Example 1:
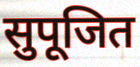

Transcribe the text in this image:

सुपूजित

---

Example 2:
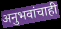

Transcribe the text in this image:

अनुभवांचाही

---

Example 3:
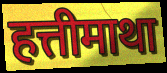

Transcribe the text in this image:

हत्तीमाथा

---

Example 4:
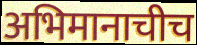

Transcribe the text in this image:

अभिमानाचीच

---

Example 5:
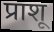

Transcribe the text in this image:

प्राशू